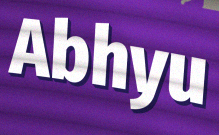
Abhyu